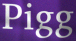
Pigg